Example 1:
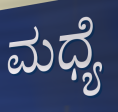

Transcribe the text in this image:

ಮಧ್ಯೆ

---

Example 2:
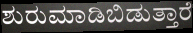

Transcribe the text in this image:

ಶುರುಮಾಡಿಬಿಡುತ್ತಾರೆ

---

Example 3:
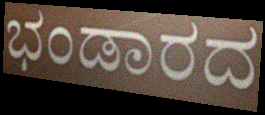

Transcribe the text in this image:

ಭಂಡಾರದ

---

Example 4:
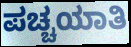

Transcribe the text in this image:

ಪಚ್ಚಯಾತಿ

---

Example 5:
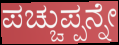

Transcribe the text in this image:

ಪಚ್ಚುಪ್ಪನ್ನೇ